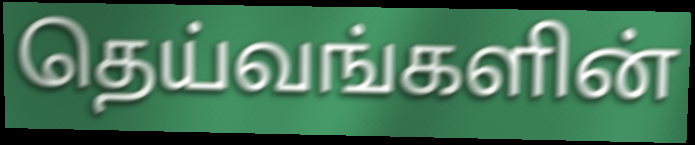
தெய்வங்களின்